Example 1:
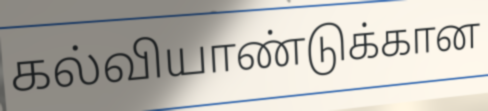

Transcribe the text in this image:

கல்வியாண்டுக்கான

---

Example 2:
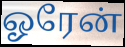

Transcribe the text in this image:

ஓரேன்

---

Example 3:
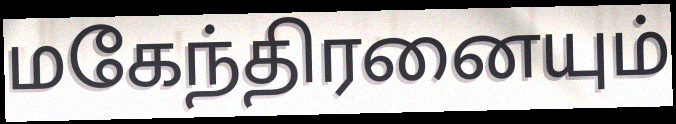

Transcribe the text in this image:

மகேந்திரனையும்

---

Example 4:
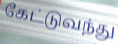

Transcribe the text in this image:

கேட்டுவந்து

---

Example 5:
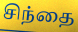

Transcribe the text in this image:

சிந்தை